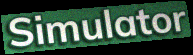
Simulator